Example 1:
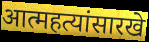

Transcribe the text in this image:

आत्महत्यांसारखे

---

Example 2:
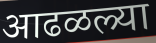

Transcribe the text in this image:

आढळल्या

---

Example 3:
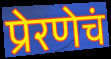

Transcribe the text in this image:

प्रेरणेचं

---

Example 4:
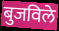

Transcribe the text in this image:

बुजविले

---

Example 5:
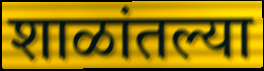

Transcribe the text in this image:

शाळांतल्या